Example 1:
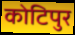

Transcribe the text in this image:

कोटिपुर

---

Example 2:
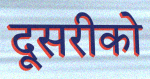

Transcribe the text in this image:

दूसरीको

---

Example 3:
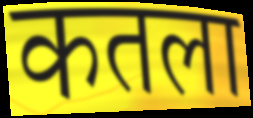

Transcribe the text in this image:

कतला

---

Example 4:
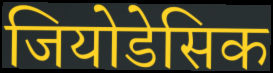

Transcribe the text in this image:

जियोडेसिक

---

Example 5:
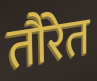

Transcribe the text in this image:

तौरेत